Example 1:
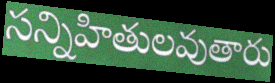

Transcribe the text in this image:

సన్నిహితులవుతారు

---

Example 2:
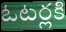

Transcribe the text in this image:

ఓటర్లకి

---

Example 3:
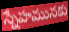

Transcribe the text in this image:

స్నేహమునకు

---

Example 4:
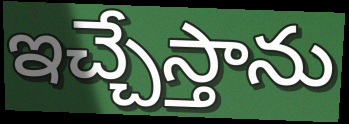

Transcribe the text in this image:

ఇచ్చేస్తాను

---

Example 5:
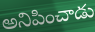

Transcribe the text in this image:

అనిపించాడు